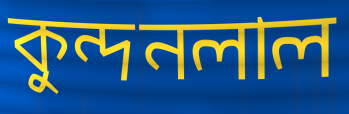
কুন্দনলাল